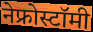
नेफ्रोस्टॉमी